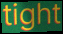
tight